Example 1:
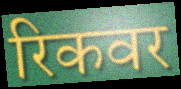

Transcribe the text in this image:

रिकवर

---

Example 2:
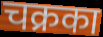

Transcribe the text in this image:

चक्रका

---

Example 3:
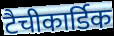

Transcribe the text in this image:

टैचीकार्डिक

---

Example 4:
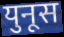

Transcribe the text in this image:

युनूस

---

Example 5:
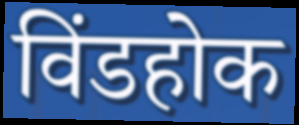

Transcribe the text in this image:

विंडहोक